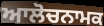
ਆਲੋਚਨਾਮਕ